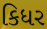
કિધર